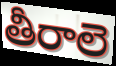
తీరాలె